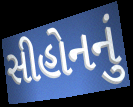
સીહોનનું